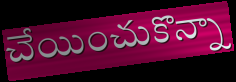
చేయించుకొన్నా